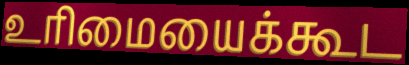
உரிமையைக்கூட